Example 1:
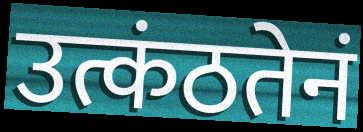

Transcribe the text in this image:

उत्कंठतेनं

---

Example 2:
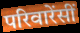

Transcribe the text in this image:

परिवारेंसीं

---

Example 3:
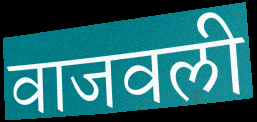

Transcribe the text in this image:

वाजवली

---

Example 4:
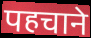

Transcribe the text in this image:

पहचाने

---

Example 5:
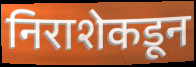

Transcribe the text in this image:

निराशेकडून